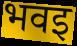
भवइ